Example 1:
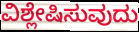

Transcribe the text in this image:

ವಿಶ್ಲೇಷಿಸುವುದು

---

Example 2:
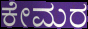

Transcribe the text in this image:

ಕೇಮರ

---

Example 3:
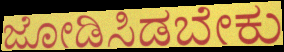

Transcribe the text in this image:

ಜೋಡಿಸಿಡಬೇಕು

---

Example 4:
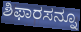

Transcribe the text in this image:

ಶಿಫಾರಸನ್ನೂ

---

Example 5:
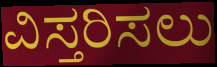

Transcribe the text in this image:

ವಿಸ್ತರಿಸಲು